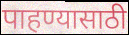
पाहण्यासाठी